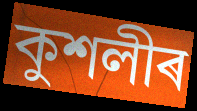
কুশলীৰ